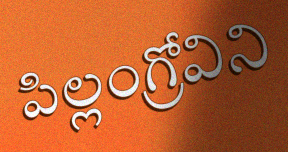
పిల్లంగ్రోవిని